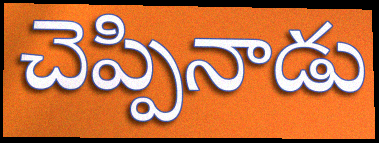
చెప్పినాడు